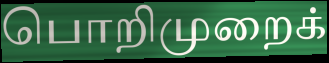
பொறிமுறைக்